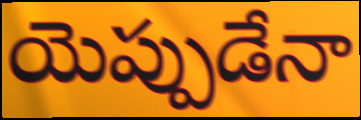
యెప్పుడేనా